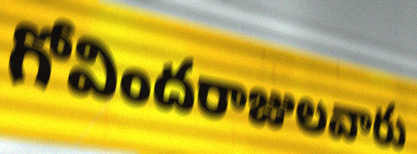
గోవిందరాజులవారు